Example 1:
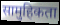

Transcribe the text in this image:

सामुहिकता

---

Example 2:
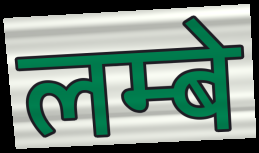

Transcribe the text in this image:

लम्बे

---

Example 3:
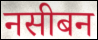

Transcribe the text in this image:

नसीबन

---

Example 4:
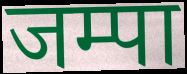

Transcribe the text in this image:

जम्पा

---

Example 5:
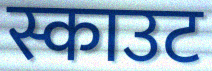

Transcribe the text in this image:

स्काउट